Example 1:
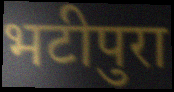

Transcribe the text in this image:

भटीपुरा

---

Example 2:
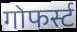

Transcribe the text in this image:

गोफर्स्ट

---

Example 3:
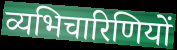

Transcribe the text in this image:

व्यभिचारिणियों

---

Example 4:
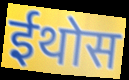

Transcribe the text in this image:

ईथोस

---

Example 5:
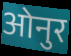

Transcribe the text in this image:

ओनुर